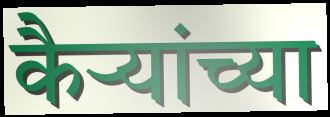
कैऱ्यांच्या